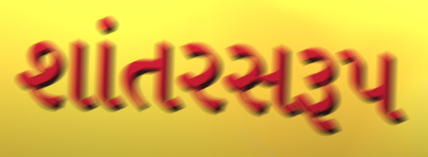
શાંતરસરૂપ